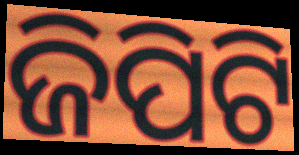
ଜିପିଟି